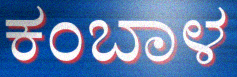
ಕಂಬಾಳ